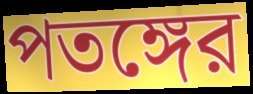
পতঙ্গের